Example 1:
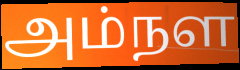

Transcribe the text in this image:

அம்நள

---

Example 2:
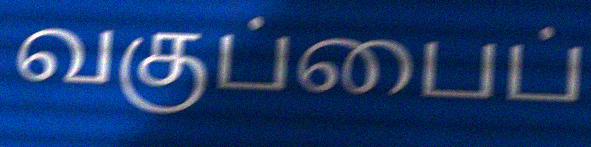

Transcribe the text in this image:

வகுப்பைப்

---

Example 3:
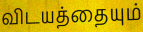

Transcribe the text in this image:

விடயத்தையும்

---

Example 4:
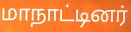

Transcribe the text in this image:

மாநாட்டினர்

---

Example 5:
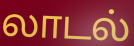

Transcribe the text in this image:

லாடல்